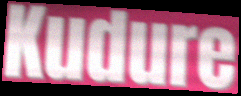
Kudure